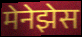
मेनेझेस